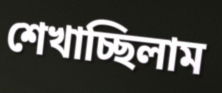
শেখাচ্ছিলাম